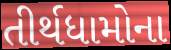
તીર્થધામોના